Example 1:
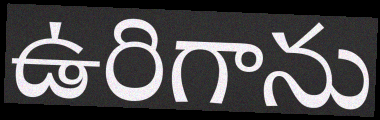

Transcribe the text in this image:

ఉరిగాను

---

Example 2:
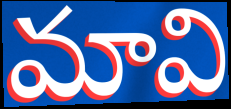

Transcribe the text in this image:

మావి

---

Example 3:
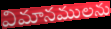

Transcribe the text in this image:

విమానములను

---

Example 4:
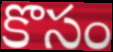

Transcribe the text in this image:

కొసం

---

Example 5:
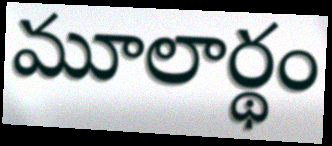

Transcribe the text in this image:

మూలార్థం